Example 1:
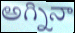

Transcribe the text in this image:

అగ్నినా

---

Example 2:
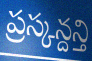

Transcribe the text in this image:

ప్రస్కన్దన్తి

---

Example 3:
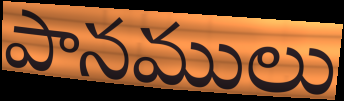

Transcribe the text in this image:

పానములు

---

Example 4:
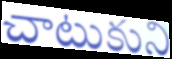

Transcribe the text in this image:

చాటుకుని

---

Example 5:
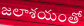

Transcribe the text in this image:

జలాశయంతో